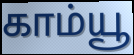
காம்யூ